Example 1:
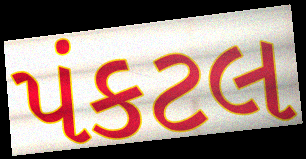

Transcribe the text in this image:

પંકટલ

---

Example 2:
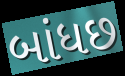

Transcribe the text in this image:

બાંધછ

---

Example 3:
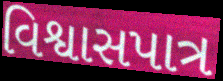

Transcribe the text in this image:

વિશ્વાસપાત્ર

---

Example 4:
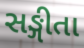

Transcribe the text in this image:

સઙ્ગીતા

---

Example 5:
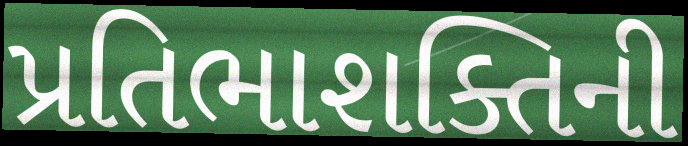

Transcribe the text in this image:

પ્રતિભાશક્તિની